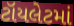
ટૉયલેટમાં